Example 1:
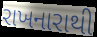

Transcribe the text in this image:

રાખનારાથી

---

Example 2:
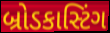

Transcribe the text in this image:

બ્રોડકાસ્ટિંગ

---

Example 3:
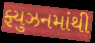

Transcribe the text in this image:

ફ્યુઝનમાંથી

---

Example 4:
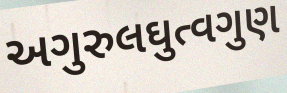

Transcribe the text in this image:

અગુરુલઘુત્વગુણ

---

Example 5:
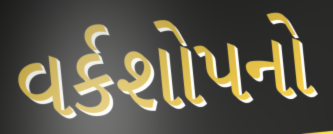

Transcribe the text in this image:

વર્કશોપનો